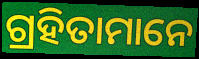
ଗ୍ରହିତାମାନେ